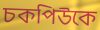
চকপিউকে